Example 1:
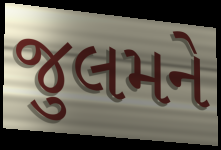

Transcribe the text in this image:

જુલમને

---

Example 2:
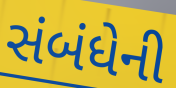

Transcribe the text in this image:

સંબંધેની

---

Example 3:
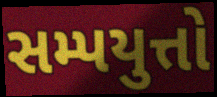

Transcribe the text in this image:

સમ્પયુત્તો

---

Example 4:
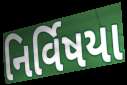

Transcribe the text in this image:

નિર્વિષયા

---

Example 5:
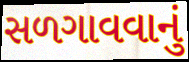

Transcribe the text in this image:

સળગાવવાનું